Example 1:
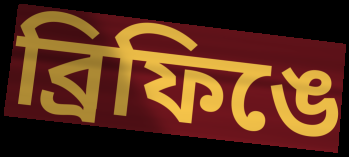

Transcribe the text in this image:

ব্রিফিঙে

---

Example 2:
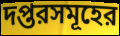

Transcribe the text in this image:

দপ্তরসমূহের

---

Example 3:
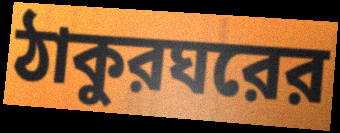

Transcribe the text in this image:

ঠাকুরঘরের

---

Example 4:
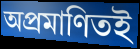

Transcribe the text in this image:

অপ্রমাণিতই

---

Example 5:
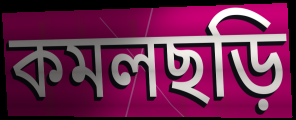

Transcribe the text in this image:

কমলছড়ি